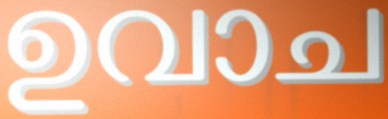
ഉവാച